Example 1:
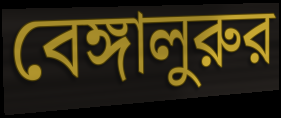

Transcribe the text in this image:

বেঙ্গালুরুর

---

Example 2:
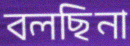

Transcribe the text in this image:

বলছিনা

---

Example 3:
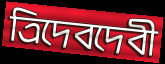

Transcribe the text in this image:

ত্রিদেবদেবী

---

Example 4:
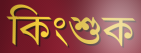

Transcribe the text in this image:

কিংশুক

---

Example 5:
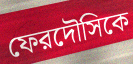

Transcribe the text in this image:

ফেরদৌসিকে